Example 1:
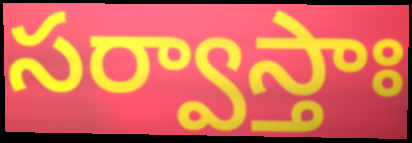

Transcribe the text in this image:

సర్వాస్తాః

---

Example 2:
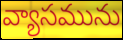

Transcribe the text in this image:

వ్యాసమును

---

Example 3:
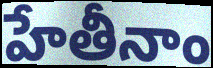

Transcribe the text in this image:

హేతీనాం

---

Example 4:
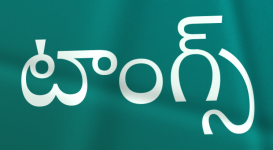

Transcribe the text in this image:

టాంగ్స్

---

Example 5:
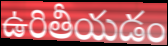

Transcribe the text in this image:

ఉరితీయడం